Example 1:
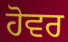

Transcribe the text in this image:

ਹੋਵਰ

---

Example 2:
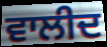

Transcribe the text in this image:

ਵਾਲੀਦ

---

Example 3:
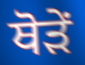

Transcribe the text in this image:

ਥੋੜੇਂ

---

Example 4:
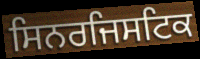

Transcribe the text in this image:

ਸਿਨਰਜਿਸਟਿਕ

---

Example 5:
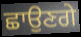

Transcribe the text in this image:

ਛਾਉਣਗੇ